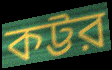
কট্টর